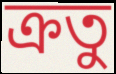
ক্রতু